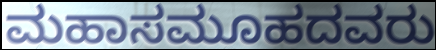
ಮಹಾಸಮೂಹದವರು